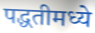
पद्धतीमध्ये